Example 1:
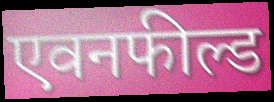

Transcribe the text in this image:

एवनफील्ड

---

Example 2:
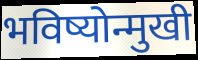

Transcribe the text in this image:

भविष्योन्मुखी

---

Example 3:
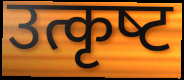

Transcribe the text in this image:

उत्कृष्‍ट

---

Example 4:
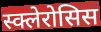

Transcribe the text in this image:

स्क्लेरोसिस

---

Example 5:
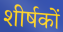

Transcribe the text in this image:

शीर्षकों